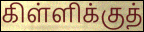
கிள்ளிக்குத்